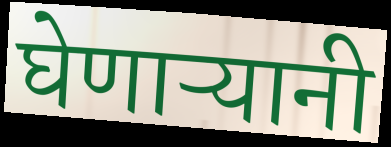
घेणाऱ्यानी